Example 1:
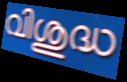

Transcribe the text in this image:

വിശുദ്ധ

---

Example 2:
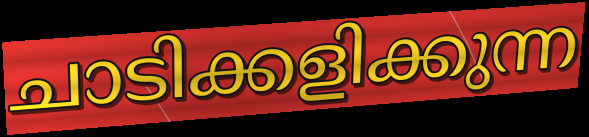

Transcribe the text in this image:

ചാടിക്കളിക്കുന്ന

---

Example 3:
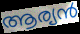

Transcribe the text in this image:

ആര്യൻ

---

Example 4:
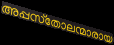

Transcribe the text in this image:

അപ്പസ്‌തോലന്മാരായ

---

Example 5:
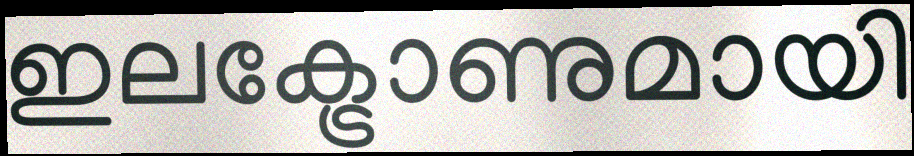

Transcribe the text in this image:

ഇലക്ട്രോണുമായി